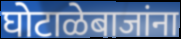
घोटाळेबाजांना